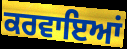
ਕਰਵਾਇਆਂ